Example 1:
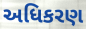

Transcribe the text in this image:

અધિકરણ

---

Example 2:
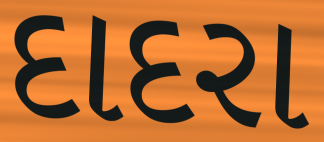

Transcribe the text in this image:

દાદરા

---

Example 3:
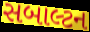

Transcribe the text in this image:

સબાલ્ટન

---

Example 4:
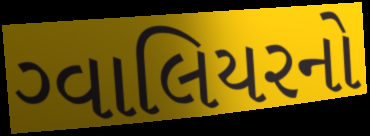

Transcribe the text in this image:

ગ્વાલિયરનો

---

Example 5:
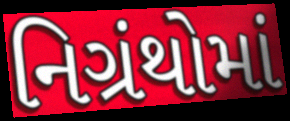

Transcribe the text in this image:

નિગ્રંથોમાં